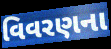
વિવરણના